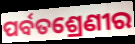
ପର୍ବତଶ୍ରେଣୀର